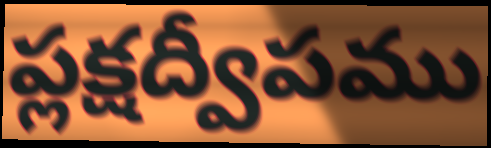
ప్లక్షద్వీపము